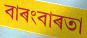
বাৰংবাৰতা